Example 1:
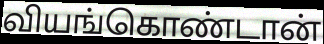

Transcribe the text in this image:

வியங்கொண்டான்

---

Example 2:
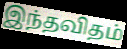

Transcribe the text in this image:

இந்தவிதம்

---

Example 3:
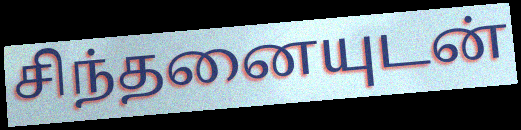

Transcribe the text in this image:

சிந்தனையுடன்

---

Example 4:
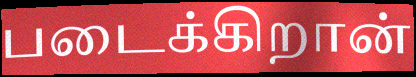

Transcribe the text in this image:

படைக்கிறான்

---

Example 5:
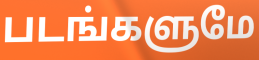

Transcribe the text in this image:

படங்களுமே